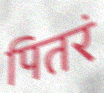
पितरं